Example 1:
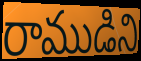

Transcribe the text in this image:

రాముడిని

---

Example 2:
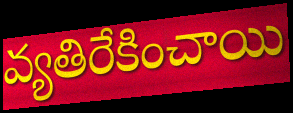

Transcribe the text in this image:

వ్యతిరేకించాయి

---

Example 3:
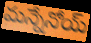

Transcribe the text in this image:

మన్నేనోయ్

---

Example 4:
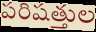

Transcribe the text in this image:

పరిషత్తుల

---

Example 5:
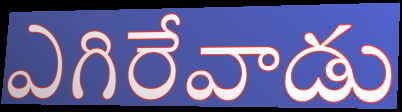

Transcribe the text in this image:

ఎగిరేవాడు